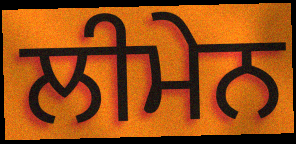
ਲੀਮੇਨ